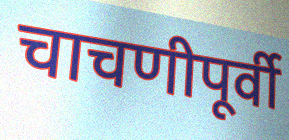
चाचणीपूर्वी